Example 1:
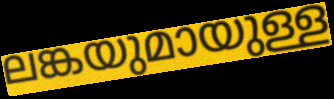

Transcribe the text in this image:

ലങ്കയുമായുള്ള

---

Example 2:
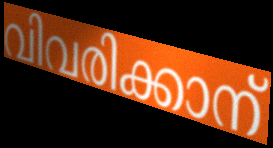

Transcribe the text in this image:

വിവരിക്കാന്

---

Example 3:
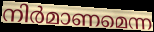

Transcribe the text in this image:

നിർമാണമെന്ന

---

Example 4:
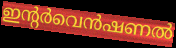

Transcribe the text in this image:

ഇന്റർവെൻഷണൽ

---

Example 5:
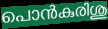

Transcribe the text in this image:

പൊൻകുരിശു